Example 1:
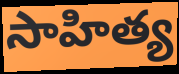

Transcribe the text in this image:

సాహిత్య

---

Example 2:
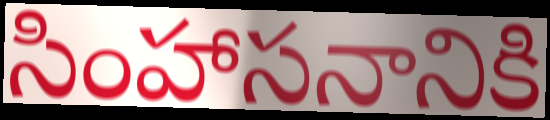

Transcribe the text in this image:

సింహాసనానికి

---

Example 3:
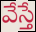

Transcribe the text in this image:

వేస్తే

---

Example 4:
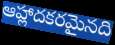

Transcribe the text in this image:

ఆహ్లాదకరమైనది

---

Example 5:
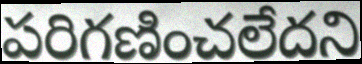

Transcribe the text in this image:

పరిగణించలేదని